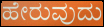
ಹೇರುವುದು